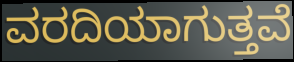
ವರದಿಯಾಗುತ್ತವೆ